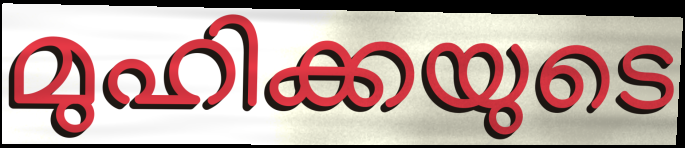
മുഹിക്കയുടെ